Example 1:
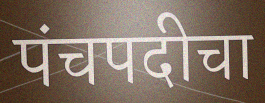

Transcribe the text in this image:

पंचपदीचा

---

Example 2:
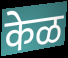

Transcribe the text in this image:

केळ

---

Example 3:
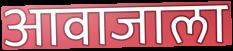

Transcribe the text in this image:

आवाजाला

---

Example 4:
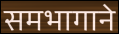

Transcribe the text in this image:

समभागाने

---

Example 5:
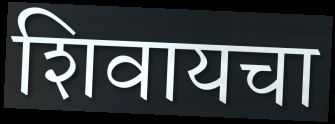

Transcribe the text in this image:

शिवायचा